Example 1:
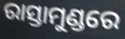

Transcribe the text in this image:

ରାସ୍ତାମୁଣ୍ଡରେ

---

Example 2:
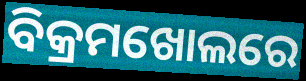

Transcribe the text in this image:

ବିକ୍ରମଖୋଲରେ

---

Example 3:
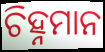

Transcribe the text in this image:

ଚିହ୍ନମାନ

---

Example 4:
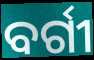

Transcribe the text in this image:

ବର୍ଗୀ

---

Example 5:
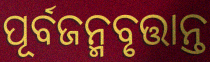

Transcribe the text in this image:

ପୂର୍ବଜନ୍ମବୃତ୍ତାନ୍ତ